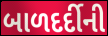
બાળદર્દીની